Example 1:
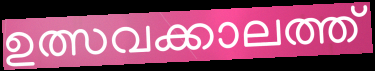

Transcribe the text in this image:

ഉത്സവക്കാലത്ത്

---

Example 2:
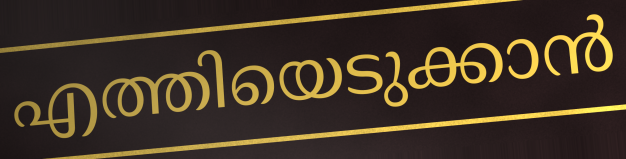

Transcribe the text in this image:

എത്തിയെടുക്കാൻ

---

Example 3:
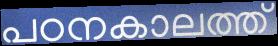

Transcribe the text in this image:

പഠനകാലത്ത്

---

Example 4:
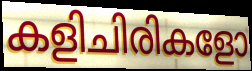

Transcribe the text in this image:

കളിചിരികളോ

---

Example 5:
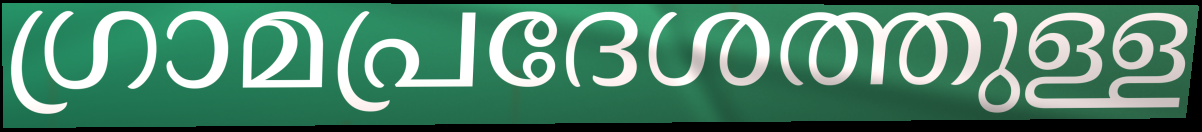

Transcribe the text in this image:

ഗ്രാമപ്രദേശത്തുള്ള